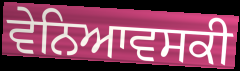
ਵੇਨਿਆਵਸਕੀ